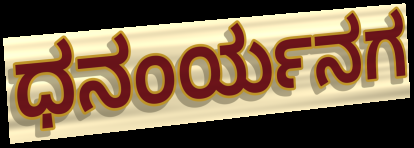
ಧನಂರ್ಯನಗ